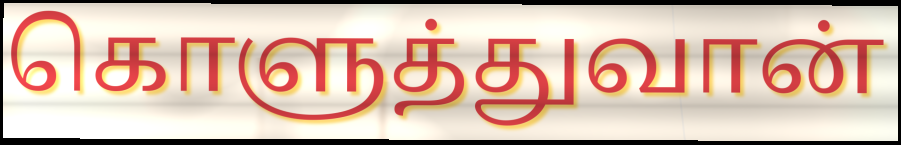
கொளுத்துவான்